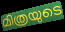
മിത്രയുടെ